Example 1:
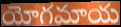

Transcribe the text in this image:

యోగమాయ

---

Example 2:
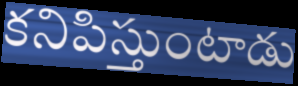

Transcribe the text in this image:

కనిపిస్తుంటాడు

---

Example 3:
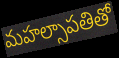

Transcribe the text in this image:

మహల్సాపతితో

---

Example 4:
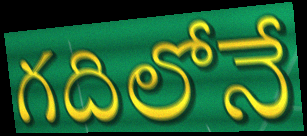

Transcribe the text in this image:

గదిలోనే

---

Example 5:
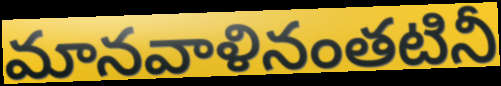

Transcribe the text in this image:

మానవాళినంతటినీ